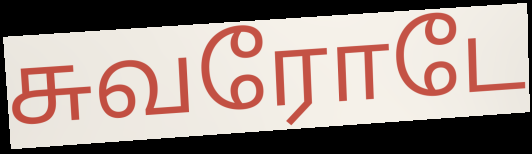
சுவரோடே